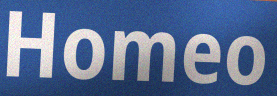
Homeo